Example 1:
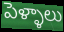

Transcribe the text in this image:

పెళ్ళాలు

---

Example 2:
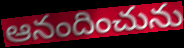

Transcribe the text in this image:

ఆనందించును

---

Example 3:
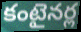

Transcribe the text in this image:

కంటైనర్ల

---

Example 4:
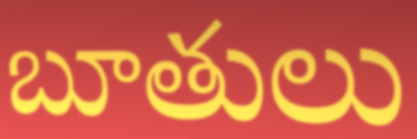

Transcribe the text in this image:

బూతులు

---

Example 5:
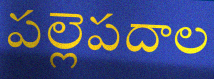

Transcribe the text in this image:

పల్లెపదాల